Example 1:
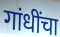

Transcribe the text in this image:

गांधींचा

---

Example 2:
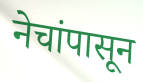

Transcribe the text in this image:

नेचांपासून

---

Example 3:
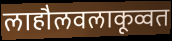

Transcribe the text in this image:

लाहौलवलाकूव्वत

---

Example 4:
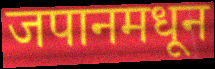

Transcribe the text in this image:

जपानमधून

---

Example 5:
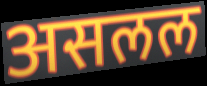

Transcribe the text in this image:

असलल